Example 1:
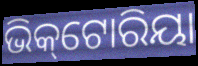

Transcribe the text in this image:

ଭିକ୍‌ଟୋରିୟା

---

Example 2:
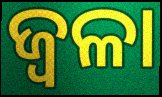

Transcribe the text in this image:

ଜ୍ୱଳା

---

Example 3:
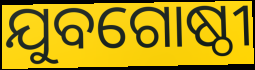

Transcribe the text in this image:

ଯୁବଗୋଷ୍ଠୀ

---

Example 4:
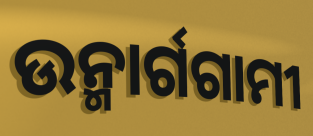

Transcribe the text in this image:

ଉନ୍ମାର୍ଗଗାମୀ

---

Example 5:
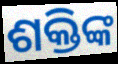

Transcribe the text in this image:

ଶକ୍ତିଙ୍କ